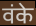
वंके